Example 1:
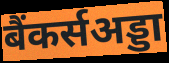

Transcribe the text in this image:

बैंकर्सअड्डा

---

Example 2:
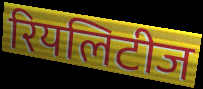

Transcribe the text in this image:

रियलिटीज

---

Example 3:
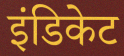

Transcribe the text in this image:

इंडिकेट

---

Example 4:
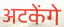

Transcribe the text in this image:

अटकेंगे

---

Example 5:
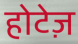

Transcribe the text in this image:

होटेज़